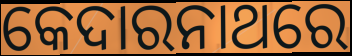
କେଦାରନାଥରେ